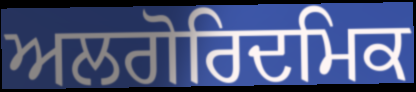
ਅਲਗੋਰਿਦਮਿਕ